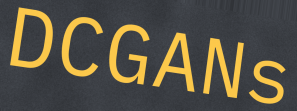
DCGANs